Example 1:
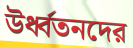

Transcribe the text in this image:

উর্ধ্বতনদের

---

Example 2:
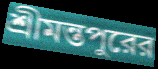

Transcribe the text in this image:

শ্রীমন্তপুরের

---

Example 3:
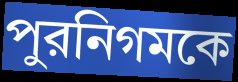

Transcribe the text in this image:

পুরনিগমকে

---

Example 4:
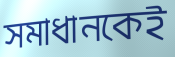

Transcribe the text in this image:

সমাধানকেই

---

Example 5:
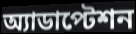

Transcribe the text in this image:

অ্যাডাপ্টেশন